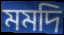
মমদি